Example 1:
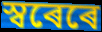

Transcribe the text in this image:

স্বৰেৰে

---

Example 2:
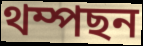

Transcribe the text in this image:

থম্পছন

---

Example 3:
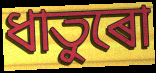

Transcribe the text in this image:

ধাতুৰো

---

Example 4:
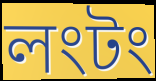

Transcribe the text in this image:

লংটং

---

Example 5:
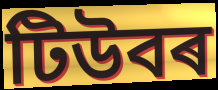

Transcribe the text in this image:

টিউবৰ